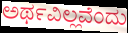
ಅರ್ಥವಿಲ್ಲವೆಂದು